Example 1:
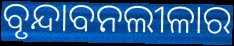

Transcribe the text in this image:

ବୃନ୍ଦାବନଲୀଳାର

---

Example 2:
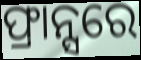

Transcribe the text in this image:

ଫ୍ରାନ୍ସରେ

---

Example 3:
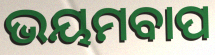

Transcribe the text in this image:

ଭୟମବାପ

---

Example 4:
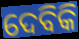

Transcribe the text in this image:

ଦେବିକି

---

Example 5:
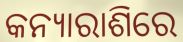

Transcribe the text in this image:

କନ୍ୟାରାଶିରେ